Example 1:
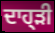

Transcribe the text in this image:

ਦਾਹ੍ੜੀ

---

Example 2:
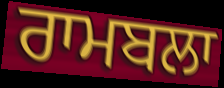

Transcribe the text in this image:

ਰਾਮਬਲਾ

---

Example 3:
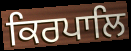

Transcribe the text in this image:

ਕਿਰਪਾਲਿ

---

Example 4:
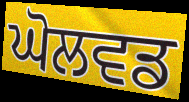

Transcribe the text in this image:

ਘੋਲਵਡ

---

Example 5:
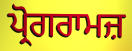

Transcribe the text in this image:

ਪ੍ਰੋਗਰਾਮਜ਼